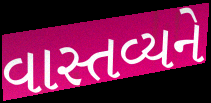
વાસ્તવ્યને